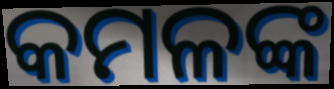
କମଳଙ୍କ